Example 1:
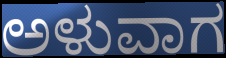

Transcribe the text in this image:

ಅಳುವಾಗ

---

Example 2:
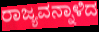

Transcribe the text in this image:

ರಾಜ್ಯವನ್ನಾಳಿದ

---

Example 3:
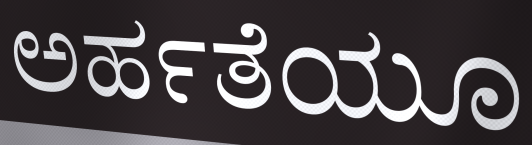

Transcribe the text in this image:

ಅರ್ಹತೆಯೂ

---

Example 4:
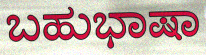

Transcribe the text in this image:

ಬಹುಭಾಷಾ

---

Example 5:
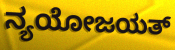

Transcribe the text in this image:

ನ್ಯಯೋಜಯತ್